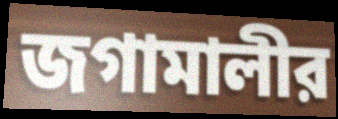
জগামালীর